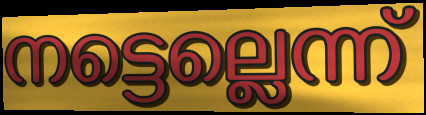
നട്ടെല്ലെന്ന്